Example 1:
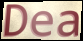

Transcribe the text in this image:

Dea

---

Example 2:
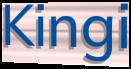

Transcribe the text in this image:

Kingi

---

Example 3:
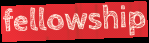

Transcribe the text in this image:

fellowship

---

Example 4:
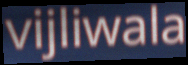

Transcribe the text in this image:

vijliwala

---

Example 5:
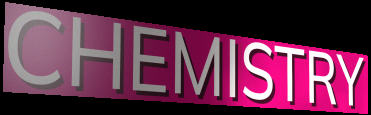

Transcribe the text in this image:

CHEMISTRY